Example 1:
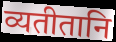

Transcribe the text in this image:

व्यतीतानि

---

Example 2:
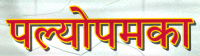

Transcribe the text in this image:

पल्योपमका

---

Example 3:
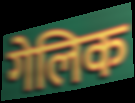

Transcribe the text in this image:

गेलिक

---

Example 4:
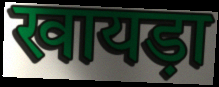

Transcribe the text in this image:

खायड़ा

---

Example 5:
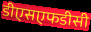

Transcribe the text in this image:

डीएसएफडीसी